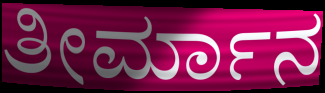
ತೀರ್ಮಾನ